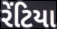
રેંટિયા